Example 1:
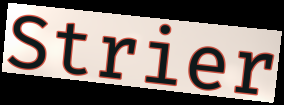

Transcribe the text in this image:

Strier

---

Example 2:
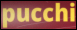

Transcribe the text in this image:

pucchi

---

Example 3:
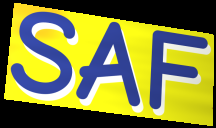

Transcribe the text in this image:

SAF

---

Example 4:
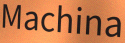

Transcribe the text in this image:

Machina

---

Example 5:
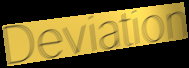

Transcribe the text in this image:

Deviation